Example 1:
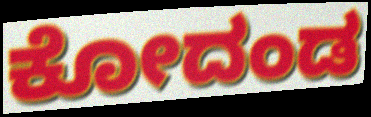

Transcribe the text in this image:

ಕೋದಂಡ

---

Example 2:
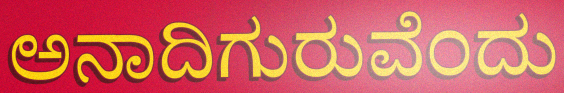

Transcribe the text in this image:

ಅನಾದಿಗುರುವೆಂದು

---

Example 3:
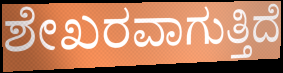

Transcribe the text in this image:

ಶೇಖರವಾಗುತ್ತಿದೆ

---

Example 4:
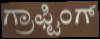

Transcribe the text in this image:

ಗ್ರಾಫ್ಟಿಂಗ್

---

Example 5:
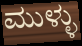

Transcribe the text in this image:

ಮುಳ್ಳು